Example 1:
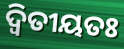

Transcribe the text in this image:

ଦ୍ବିତୀୟତଃ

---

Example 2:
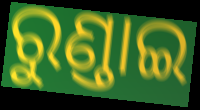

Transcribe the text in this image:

ରୁଣ୍ଡାଇ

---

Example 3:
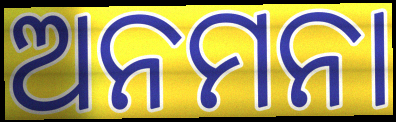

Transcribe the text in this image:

ଅନମନା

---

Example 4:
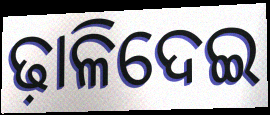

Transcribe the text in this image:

ଢ଼ାଳିଦେଇ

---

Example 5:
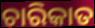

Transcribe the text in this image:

ଚାରିକାତ